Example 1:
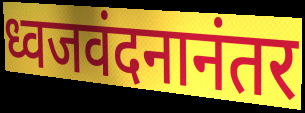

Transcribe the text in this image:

ध्वजवंदनानंतर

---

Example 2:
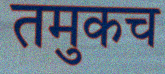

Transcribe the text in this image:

तमुकच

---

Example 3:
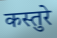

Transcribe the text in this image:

कस्तुरे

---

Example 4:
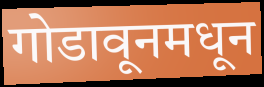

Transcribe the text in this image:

गोडावूनमधून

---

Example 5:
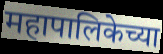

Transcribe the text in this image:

महापालिकेच्या